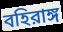
বহিরাঙ্গ